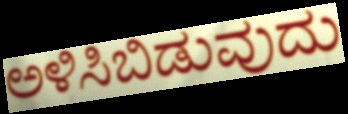
ಅಳಿಸಿಬಿಡುವುದು